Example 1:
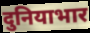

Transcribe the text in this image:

दुनियाभार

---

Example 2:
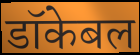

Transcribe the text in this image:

डॉकेबल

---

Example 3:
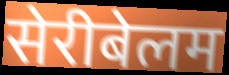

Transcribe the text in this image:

सेरीबेलम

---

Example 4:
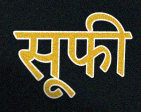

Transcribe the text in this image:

सूफी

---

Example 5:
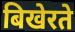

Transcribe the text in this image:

बिखेरते